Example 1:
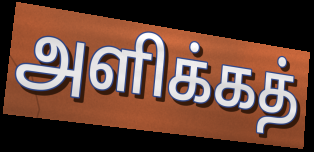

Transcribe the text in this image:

அளிக்கத்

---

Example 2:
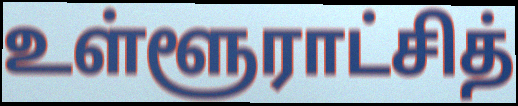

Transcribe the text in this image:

உள்ளூராட்சித்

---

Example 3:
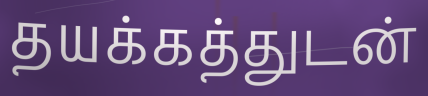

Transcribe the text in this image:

தயக்கத்துடன்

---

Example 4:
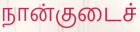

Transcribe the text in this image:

நான்குடைச்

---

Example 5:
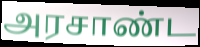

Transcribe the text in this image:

அரசாண்ட